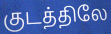
குடத்திலே